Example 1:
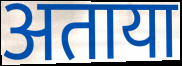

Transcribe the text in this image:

अताया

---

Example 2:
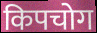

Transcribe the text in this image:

किपचोग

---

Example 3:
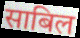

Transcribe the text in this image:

साबिल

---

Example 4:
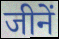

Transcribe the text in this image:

जीनें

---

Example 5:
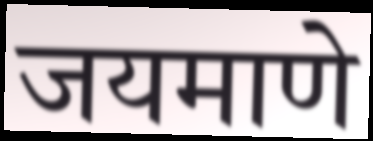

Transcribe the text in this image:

जयमाणे